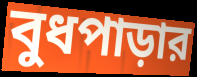
বুধপাড়ার